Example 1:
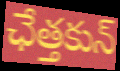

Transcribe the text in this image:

ఛేత్తకున్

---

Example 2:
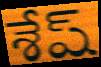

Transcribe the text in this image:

శేష్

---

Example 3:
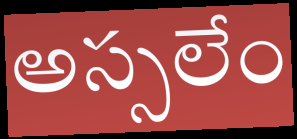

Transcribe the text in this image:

అస్సలేం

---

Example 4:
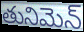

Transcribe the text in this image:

తునిమెన్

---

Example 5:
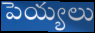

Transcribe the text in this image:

పెయ్యలు